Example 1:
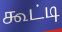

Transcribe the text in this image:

கூட்டி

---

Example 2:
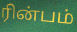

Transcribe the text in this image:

ரின்பம்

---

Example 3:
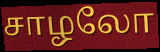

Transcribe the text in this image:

சாழலோ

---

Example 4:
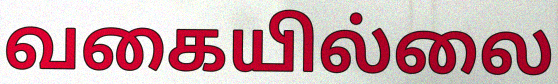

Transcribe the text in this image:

வகையில்லை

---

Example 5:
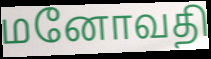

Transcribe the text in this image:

மனோவதி